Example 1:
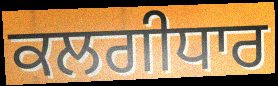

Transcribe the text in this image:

ਕਲਗੀਧਾਰ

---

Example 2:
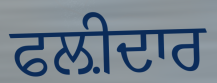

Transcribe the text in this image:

ਫਲ਼ੀਦਾਰ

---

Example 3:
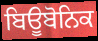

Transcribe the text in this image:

ਬਿਊਬੋਨਿਕ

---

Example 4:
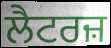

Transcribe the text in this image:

ਲੈਟਰਜ਼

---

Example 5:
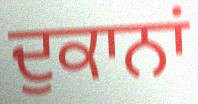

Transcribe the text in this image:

ਦੁਕਾਨਾਂ